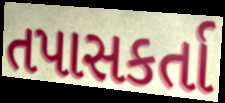
તપાસકર્તા